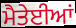
ਮੈਤੇਈਆਂ